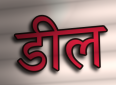
डील